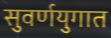
सुवर्णयुगात